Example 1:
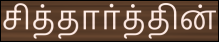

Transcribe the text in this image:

சித்தார்த்தின்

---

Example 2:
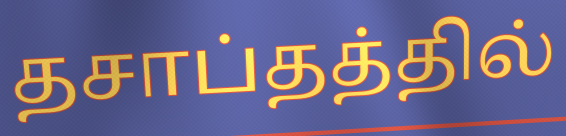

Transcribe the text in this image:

தசாப்தத்தில்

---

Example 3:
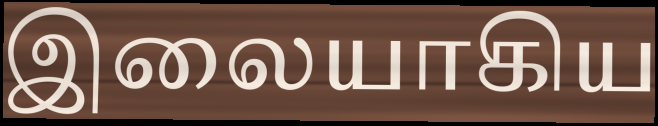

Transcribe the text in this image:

இலையாகிய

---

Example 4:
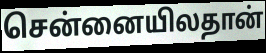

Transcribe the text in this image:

சென்னையிலதான்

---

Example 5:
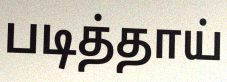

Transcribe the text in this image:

படித்தாய்